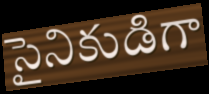
సైనికుడిగా